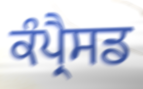
ਕੰਪ੍ਰੈਸਡ